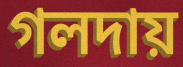
গলদায়